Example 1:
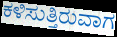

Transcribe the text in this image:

ಕಳಿಸುತ್ತಿರುವಾಗ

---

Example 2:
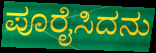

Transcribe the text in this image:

ಪೂರೈಸಿದನು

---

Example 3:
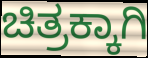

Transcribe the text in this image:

ಚಿತ್ರಕ್ಕಾಗಿ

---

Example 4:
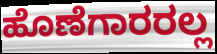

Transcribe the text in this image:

ಹೊಣೆಗಾರರಲ್ಲ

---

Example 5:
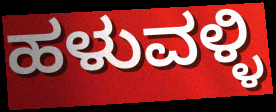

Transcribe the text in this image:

ಹಳುವಳ್ಳಿ